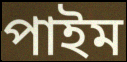
পাইম